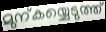
മുന്കയ്യെടുത്ത്